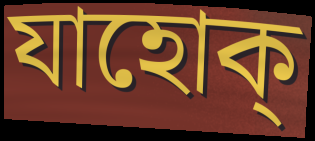
যাহোক্